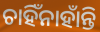
ଚାହିଁନାହାଁନ୍ତି